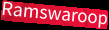
Ramswaroop